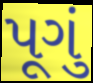
પૂગું